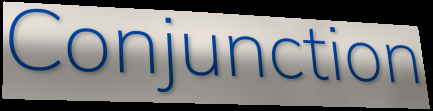
Conjunction